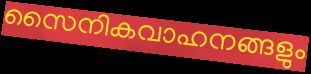
സൈനികവാഹനങ്ങളും